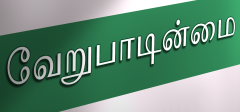
வேறுபாடின்மை